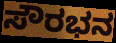
ಸೌರಭನ